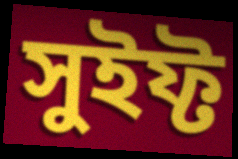
সুইফ্ট